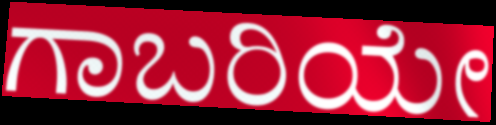
ಗಾಬರಿಯೇ